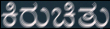
ಕಿರುಚಿತು